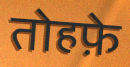
तोहफ़े